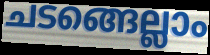
ചടങ്ങെല്ലാം